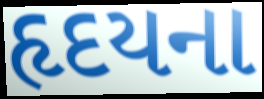
હૃદયના